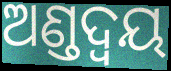
ଅଣ୍ଡଦ୍ୱୟ